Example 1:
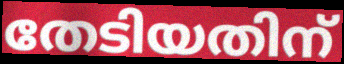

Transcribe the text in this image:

തേടിയതിന്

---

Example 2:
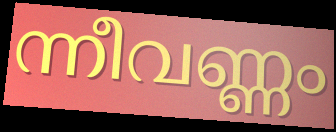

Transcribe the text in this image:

ന്നീവണ്ണം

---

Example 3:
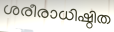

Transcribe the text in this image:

ശരീരാധിഷ്ഠിത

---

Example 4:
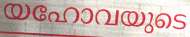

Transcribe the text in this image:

യഹോവയുടെ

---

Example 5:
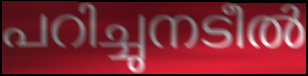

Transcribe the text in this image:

പറിച്ചുനടീൽ